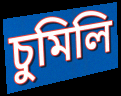
চুমিলি